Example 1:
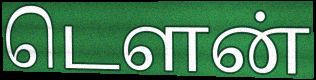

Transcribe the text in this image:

டௌன்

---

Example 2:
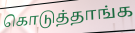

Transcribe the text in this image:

கொடுத்தாங்க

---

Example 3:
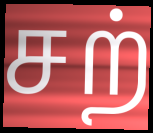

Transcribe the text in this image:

சற்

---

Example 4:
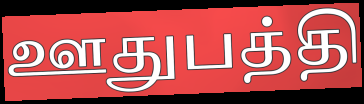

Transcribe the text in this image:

ஊதுபத்தி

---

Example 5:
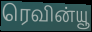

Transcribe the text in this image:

ரெவின்யூ